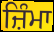
ਜ਼ਿੰਮਾ